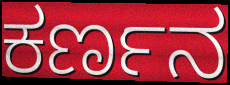
ಕರ್ಣನ